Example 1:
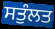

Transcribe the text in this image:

ਸਤੁੰਲਤ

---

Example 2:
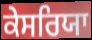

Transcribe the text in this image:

ਕੇਸਰਿਯਾ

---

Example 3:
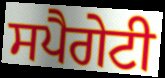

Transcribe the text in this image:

ਸਪੈਗੇਟੀ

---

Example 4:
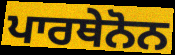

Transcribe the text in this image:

ਪਾਰਥੇਨੋਨ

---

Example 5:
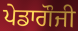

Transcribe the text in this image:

ਪੇਡਾਗੌਜੀ